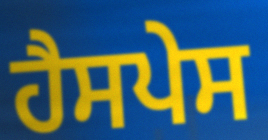
ਹੈਸਪੇਸ